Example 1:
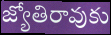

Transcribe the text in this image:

జ్యోతిరావుకు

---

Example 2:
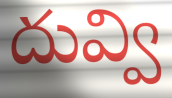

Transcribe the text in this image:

దువ్వి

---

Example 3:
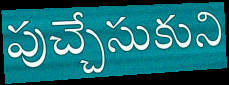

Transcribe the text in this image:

పుచ్చేసుకుని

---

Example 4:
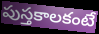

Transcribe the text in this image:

పుస్తకాలకంటే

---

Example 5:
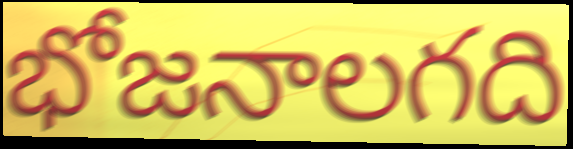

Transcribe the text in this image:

భోజనాలగది